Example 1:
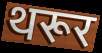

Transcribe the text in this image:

थरूर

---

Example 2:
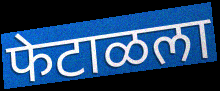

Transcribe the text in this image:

फेटाळला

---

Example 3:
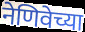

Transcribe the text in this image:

नेणिवेच्या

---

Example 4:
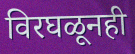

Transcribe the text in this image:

विरघळूनही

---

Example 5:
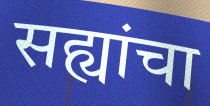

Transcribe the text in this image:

सह्यांचा